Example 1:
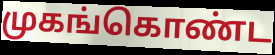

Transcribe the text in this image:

முகங்கொண்ட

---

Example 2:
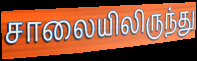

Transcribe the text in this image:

சாலையிலிருந்து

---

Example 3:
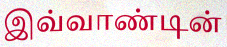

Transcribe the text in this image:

இவ்வாண்டின்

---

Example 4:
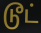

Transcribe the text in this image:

டூட்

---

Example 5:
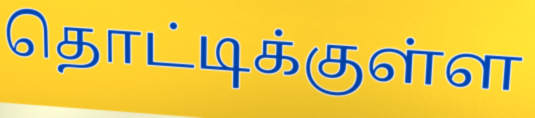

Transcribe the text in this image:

தொட்டிக்குள்ள